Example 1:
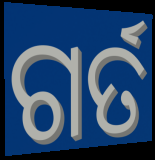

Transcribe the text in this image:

ଗର୍ତ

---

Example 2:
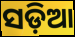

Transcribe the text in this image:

ସଡ଼ିଆ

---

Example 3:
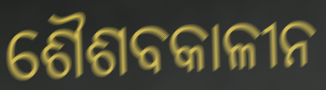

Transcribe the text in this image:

ଶୈଶବକାଳୀନ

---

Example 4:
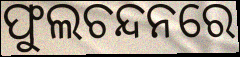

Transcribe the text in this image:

ଫୁଲଚନ୍ଦନରେ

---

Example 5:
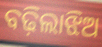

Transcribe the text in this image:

ବଢ଼ିଲାଝିଅ